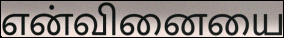
என்வினையை